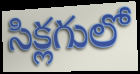
సిక్లగులో